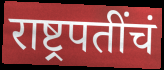
राष्ट्रपतींचं